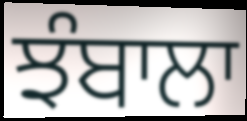
ਝੰਬਾਲਾ